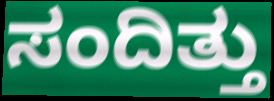
ಸಂದಿತ್ತು